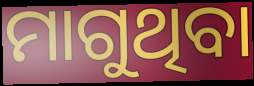
ମାଗୁଥିବା